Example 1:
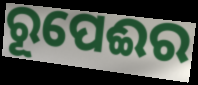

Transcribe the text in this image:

ରୂପେଈର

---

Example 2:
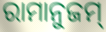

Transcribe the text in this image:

ରାମାନୁଜମ୍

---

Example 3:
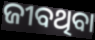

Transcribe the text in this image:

ଜୀବଥିବା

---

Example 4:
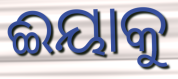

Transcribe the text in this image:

ଈୟାକୁ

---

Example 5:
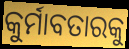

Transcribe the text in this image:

କୁର୍ମାବତାରକୁ